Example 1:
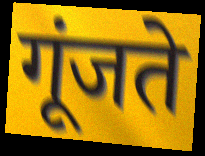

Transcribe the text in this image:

गूंजते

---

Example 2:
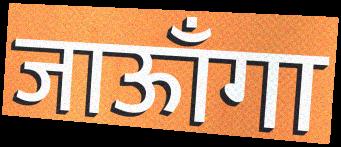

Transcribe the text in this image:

जाऊाँगा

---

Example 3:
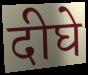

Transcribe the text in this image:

दीघे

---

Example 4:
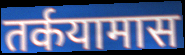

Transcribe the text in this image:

तर्कयामास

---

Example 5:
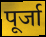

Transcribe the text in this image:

पूर्जा